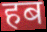
हब